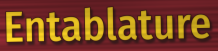
Entablature